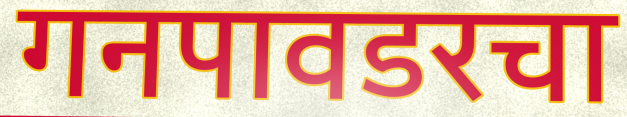
गनपावडरचा